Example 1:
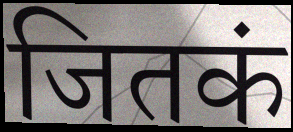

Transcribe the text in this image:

जितकं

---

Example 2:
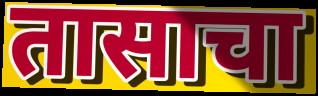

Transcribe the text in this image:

तासाचा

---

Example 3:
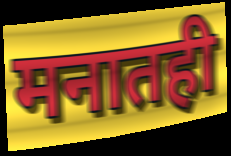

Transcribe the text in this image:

मनातही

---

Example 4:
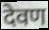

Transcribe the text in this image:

देवण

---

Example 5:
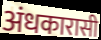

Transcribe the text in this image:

अंधकारासी